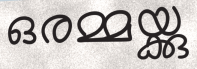
ഒരമ്മയ്ക്കു